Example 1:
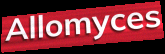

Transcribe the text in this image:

Allomyces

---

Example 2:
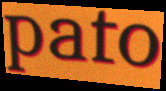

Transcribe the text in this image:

pato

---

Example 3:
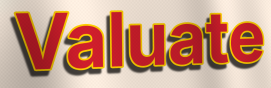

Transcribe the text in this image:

Valuate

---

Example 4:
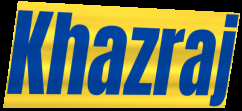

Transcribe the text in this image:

Khazraj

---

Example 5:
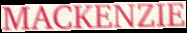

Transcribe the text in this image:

MACKENZIE